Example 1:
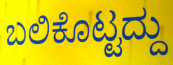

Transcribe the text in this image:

ಬಲಿಕೊಟ್ಟದ್ದು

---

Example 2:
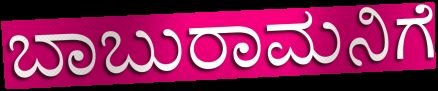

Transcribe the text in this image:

ಬಾಬುರಾಮನಿಗೆ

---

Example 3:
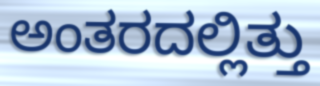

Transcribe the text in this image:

ಅಂತರದಲ್ಲಿತ್ತು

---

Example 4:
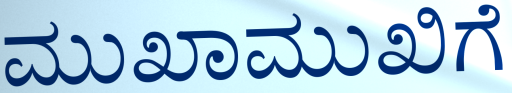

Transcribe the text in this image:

ಮುಖಾಮುಖಿಗೆ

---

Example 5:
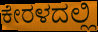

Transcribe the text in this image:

ಕೇರಳದಲ್ಲಿ